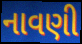
નાવણી